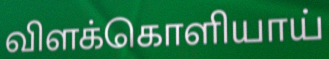
விளக்கொளியாய்